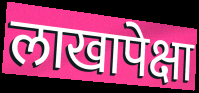
लाखापेक्षा